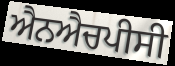
ਐਨਐਚਪੀਸੀ